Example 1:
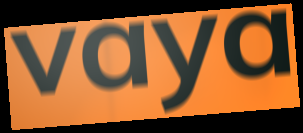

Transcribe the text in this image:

vaya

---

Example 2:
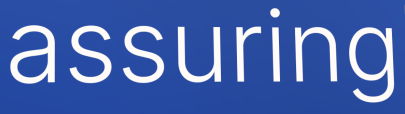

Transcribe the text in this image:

assuring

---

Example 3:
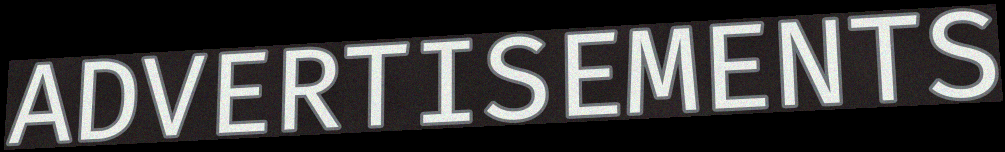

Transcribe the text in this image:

ADVERTISEMENTS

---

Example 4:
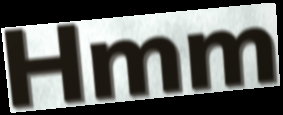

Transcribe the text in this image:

Hmm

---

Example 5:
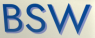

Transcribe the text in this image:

BSW